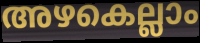
അഴകെല്ലാം